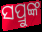
ସପ୍ରୁଙ୍କ